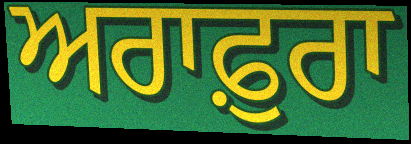
ਅਰਾਫ਼ੁਰਾ